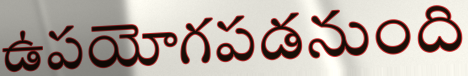
ఉపయోగపడనుంది